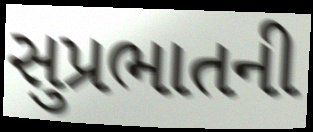
સુપ્રભાતની